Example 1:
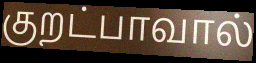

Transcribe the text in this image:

குறட்பாவால்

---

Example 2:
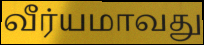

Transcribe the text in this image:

வீர்யமாவது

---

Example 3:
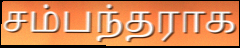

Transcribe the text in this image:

சம்பந்தராக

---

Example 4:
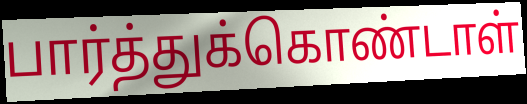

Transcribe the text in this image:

பார்த்துக்கொண்டாள்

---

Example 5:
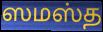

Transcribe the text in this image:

ஸமஸ்த